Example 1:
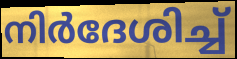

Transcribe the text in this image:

നിർദേശിച്ച്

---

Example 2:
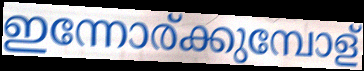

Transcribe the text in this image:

ഇന്നോര്ക്കുമ്പോള്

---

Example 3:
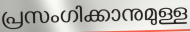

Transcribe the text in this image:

പ്രസംഗിക്കാനുമുള്ള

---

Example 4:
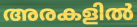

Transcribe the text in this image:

അരകളിൽ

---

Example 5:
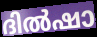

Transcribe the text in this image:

ദിൽഷാ